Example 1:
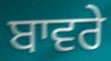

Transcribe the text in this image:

ਬਾਵਰੇ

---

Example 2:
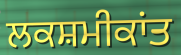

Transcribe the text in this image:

ਲਕਸ਼ਮੀਕਾਂਤ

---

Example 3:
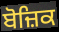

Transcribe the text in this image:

ਬੋਜ਼ਿਕ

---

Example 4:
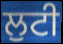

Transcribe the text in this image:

ਲੁਟੀ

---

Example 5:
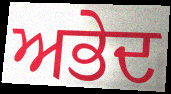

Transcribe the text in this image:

ਅਭੇਦ